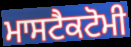
ਮਾਸਟੈਕਟੋਮੀ